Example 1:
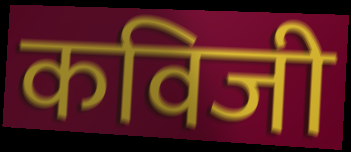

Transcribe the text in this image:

कविजी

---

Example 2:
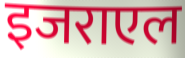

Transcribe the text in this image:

इजराएल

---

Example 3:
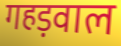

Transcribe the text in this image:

गहड़वाल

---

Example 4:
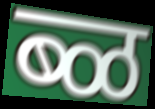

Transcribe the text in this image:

ब्ळ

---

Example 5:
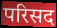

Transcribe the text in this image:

परिसद